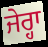
ਜੇਰ੍ਹਾ